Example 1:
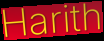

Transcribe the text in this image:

Harith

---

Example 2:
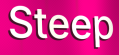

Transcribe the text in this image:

Steep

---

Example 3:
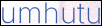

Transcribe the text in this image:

umhutu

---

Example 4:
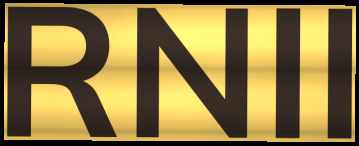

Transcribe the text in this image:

RNII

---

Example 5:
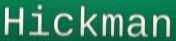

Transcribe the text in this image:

Hickman